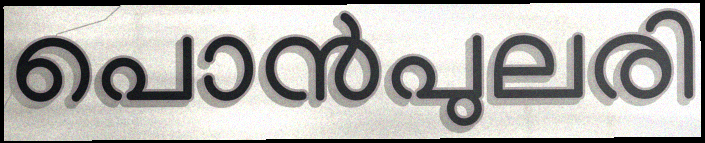
പൊൻപുലരി